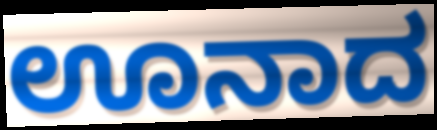
ಊನಾದ